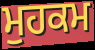
ਮੁਹਕਮ